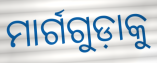
ମାର୍ଗଗୁଡ଼ାକୁ